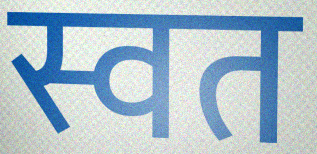
स्वत